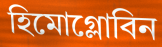
হিমোগ্লোবিন